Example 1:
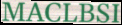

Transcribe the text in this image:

MACLBSI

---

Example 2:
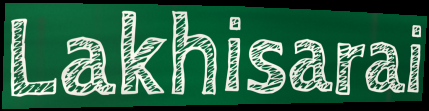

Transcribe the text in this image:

Lakhisarai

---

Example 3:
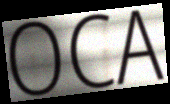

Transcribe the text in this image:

OCA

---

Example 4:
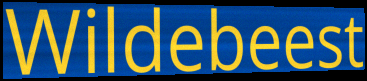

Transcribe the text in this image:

Wildebeest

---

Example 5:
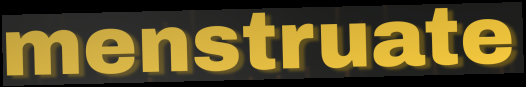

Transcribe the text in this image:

menstruate